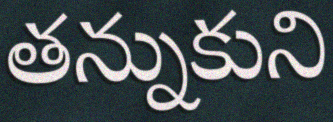
తన్నుకుని